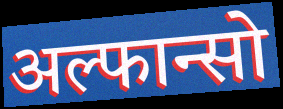
अल्फान्सो